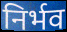
निर्भव